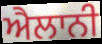
ਐਲਾਨੀ